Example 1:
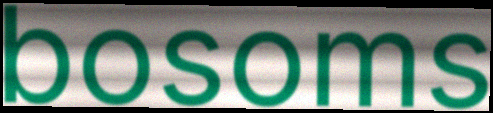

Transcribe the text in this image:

bosoms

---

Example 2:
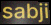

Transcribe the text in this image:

sabji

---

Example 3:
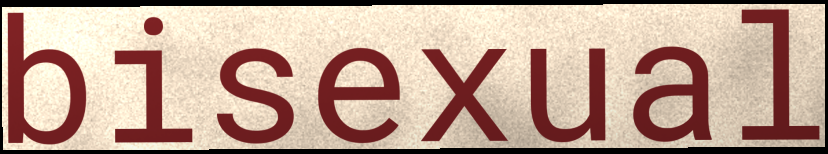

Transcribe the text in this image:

bisexual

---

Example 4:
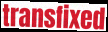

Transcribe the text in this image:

transfixed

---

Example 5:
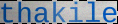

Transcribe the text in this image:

thakile